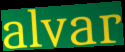
alvar